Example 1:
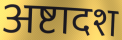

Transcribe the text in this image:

अष्टादश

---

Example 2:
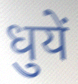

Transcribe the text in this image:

धुयें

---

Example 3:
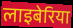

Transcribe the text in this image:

लाइबेरिया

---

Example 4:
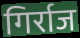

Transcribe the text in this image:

गिर्राज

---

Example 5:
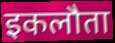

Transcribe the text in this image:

इकलौता